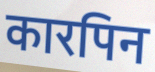
कारपिन